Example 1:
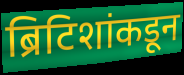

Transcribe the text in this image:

ब्रिटिशांकडून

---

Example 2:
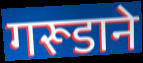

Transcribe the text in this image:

गरूडाने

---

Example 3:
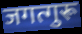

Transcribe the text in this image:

जगत्गुरू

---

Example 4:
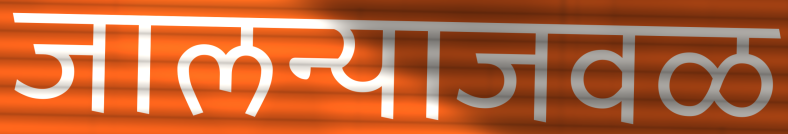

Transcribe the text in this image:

जालन्याजवळ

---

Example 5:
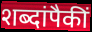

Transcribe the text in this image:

शब्दांपैकीं